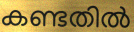
കണ്ടതിൽ